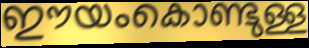
ഈയംകൊണ്ടുള്ള